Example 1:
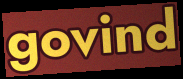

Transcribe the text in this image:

govind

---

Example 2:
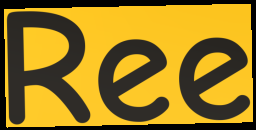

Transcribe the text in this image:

Ree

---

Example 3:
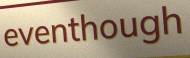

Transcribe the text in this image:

eventhough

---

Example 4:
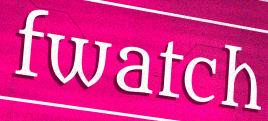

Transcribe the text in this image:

fwatch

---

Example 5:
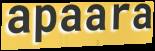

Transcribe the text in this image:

apaara